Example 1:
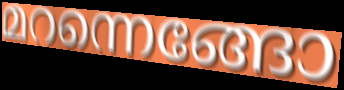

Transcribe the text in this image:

മറന്നെങ്ങോ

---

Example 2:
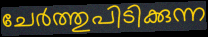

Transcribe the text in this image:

ചേർത്തുപിടിക്കുന്ന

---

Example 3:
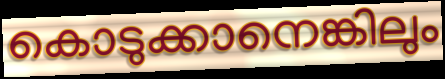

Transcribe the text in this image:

കൊടുക്കാനെങ്കിലും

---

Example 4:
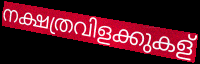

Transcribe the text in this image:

നക്ഷത്രവിളക്കുകള്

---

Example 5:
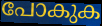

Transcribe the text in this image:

പോകുക